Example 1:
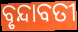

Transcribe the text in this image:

ବୃନ୍ଦାବତୀ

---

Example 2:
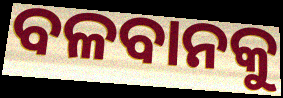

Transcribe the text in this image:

ବଳବାନକୁ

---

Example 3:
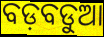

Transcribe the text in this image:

ବଡ଼ବଡୁଆ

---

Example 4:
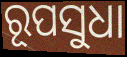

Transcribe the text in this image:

ରୂପସୁଧା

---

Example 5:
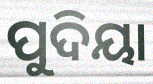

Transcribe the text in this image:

ପୁଦିୟା